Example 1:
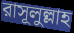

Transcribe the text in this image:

রাসূলুল্লাহ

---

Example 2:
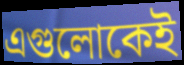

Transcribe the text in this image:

এগুলোকেই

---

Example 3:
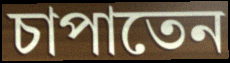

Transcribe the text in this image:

চাপাতেন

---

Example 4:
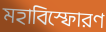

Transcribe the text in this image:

মহাবিস্ফোরণ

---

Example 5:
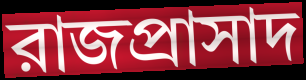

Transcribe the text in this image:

রাজপ্রাসাদ